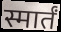
स्मार्तं